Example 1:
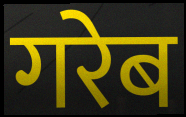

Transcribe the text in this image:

गरेब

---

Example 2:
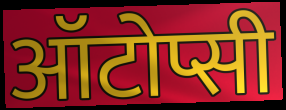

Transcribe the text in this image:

ऑटोप्सी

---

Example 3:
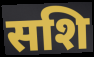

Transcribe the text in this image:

सशि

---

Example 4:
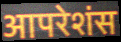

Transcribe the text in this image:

आपरेशंस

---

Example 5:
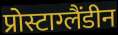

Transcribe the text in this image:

प्रोस्टाग्लैंडीन